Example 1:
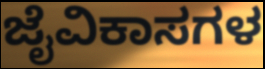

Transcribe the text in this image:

ಜೈವಿಕಾಸಗಳ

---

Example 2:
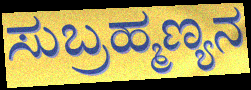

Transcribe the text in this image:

ಸುಬ್ರಹ್ಮಣ್ಯನ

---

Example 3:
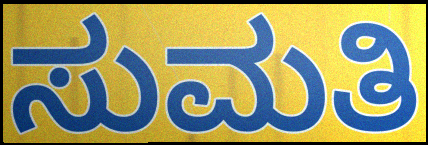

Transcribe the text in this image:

ಸುಮತಿ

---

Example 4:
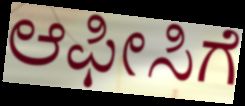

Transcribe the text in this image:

ಆಫೀಸಿಗೆ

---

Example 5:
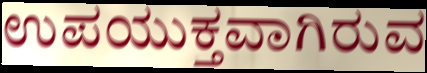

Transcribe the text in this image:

ಉಪಯುಕ್ತವಾಗಿರುವ